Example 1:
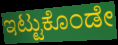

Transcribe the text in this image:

ಇಟ್ಟುಕೊಂಡೇ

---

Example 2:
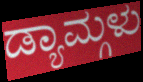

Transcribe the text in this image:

ಡ್ಯಾಮ್ಗಳು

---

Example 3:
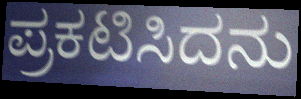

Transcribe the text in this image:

ಪ್ರಕಟಿಸಿದನು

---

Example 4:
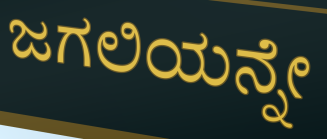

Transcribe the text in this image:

ಜಗಲಿಯನ್ನೇ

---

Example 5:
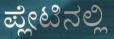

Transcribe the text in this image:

ಪ್ಲೇಟಿನಲ್ಲಿ